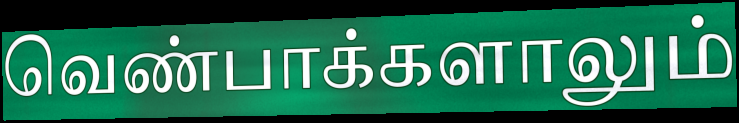
வெண்பாக்களாலும்